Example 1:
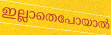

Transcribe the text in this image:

ഇല്ലാതെപോയാൽ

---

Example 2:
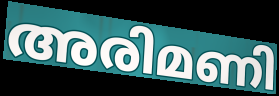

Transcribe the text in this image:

അരിമണി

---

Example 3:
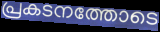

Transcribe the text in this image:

പ്രകടനത്തോടെ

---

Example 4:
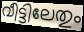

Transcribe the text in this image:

വീട്ടിലേതും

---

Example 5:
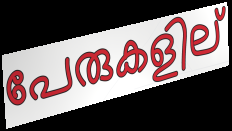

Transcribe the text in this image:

പേരുകളില്